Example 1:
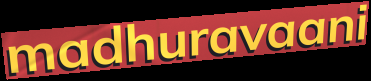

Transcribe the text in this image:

madhuravaani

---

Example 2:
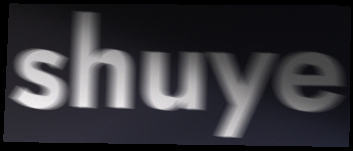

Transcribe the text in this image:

shuye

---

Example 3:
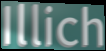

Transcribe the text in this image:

Illich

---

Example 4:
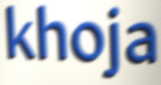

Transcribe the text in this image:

khoja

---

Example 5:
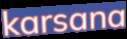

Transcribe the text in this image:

karsana